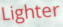
Lighter